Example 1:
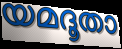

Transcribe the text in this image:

യമദൂതാ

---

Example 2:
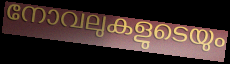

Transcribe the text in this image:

നോവലുകളുടെയും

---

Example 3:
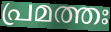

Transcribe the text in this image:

പ്രമത്തഃ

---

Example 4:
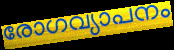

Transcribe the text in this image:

രോഗവ്യാപനം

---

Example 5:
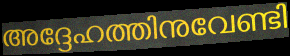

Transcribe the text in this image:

അദ്ദേഹത്തിനുവേണ്ടി